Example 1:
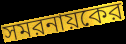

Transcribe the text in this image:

সমরনায়কের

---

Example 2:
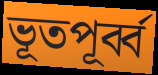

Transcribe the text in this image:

ভূতপূর্ব্ব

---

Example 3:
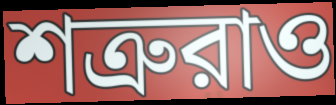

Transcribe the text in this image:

শত্রুরাও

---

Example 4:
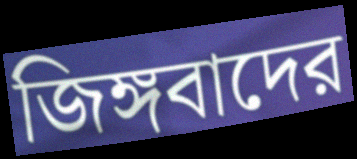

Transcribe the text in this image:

জিঙ্গবাদের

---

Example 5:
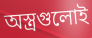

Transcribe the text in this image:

অস্ত্রগুলোই